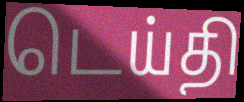
டெய்தி